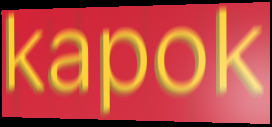
kapok